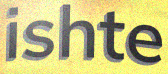
ishte